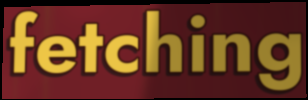
fetching